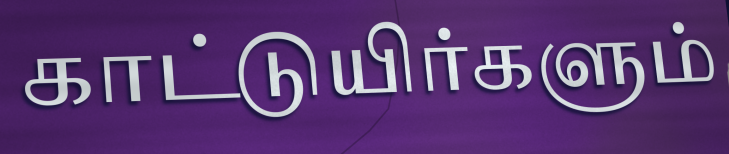
காட்டுயிர்களும்